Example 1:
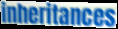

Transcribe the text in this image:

inheritances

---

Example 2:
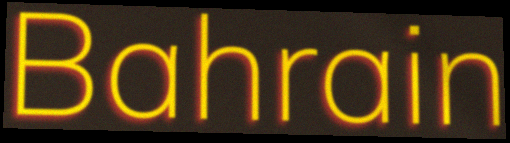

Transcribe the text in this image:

Bahrain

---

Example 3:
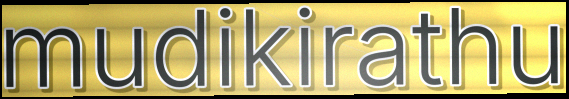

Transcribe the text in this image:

mudikirathu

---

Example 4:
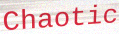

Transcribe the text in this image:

Chaotic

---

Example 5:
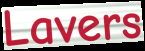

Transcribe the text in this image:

Lavers